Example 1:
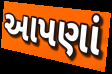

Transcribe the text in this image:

આપણાં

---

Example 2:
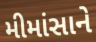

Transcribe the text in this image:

મીમાંસાને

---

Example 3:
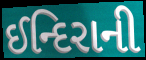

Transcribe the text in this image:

ઈન્દિરાની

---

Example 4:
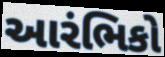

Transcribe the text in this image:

આરંભિકો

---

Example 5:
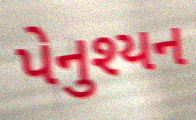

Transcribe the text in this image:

પેનુશ્યન